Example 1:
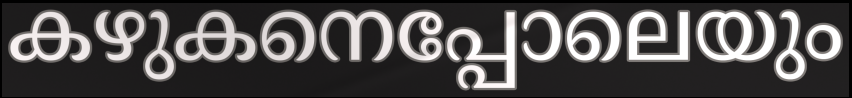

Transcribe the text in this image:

കഴുകനെപ്പോലെയും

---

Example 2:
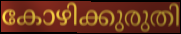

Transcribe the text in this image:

കോഴിക്കുരുതി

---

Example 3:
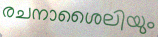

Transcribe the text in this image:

രചനാശൈലിയും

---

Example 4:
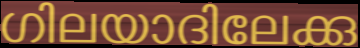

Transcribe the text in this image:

ഗിലയാദിലേക്കു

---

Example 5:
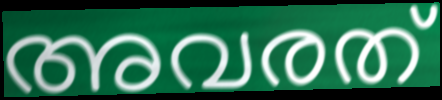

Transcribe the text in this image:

അവരത്